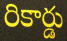
రికార్డు